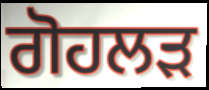
ਗੋਹਲੜ